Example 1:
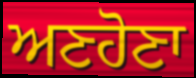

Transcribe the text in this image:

ਅਣਹੋਣਾ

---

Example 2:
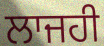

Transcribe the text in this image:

ਲਾਜਹੀ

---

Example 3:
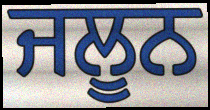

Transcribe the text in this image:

ਜਲੂਨ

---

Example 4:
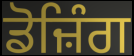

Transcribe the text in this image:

ਡੋਜ਼ਿੰਗ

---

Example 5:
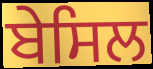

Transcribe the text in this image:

ਬੇਸਿਲ